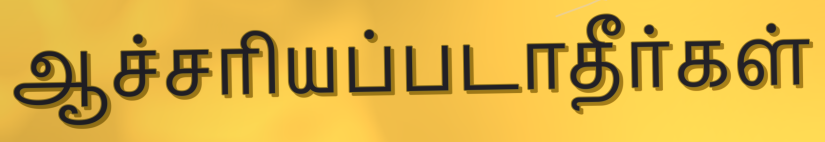
ஆச்சரியப்படாதீர்கள்